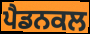
ਪੈਡਨਕਲ